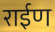
राईण